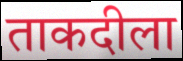
ताकदीला